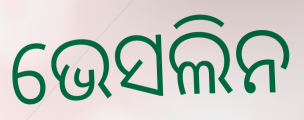
ଭେସଲିନ